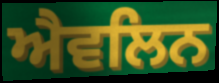
ਐਵਲਿਨ